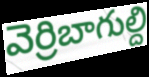
వెర్రిబాగుల్ది